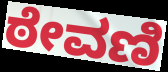
ಠೇವಣಿ